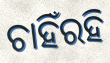
ଚାହିଁରହି